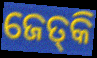
ଜେତ୍‌କି